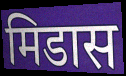
मिडास